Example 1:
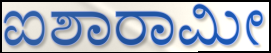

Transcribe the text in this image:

ಐಶಾರಾಮೀ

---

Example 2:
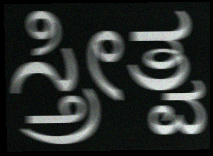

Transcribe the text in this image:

ಸ್ತ್ರೀತ್ವ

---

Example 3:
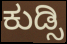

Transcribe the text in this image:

ಕುಡ್ಸಿ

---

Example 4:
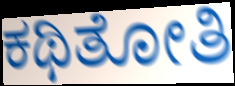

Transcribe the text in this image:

ಕಥಿತೋತಿ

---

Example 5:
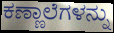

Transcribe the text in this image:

ಕಣ್ಣಾಲೆಗಳನ್ನು